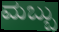
ಮಬ್ಬು